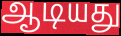
ஆடியது